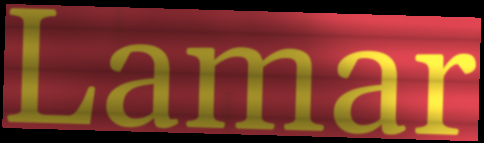
Lamar